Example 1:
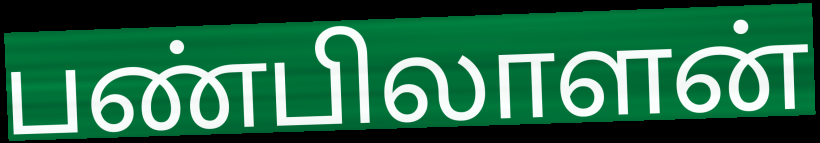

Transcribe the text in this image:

பண்பிலாளன்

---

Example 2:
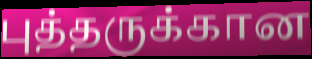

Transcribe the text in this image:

புத்தருக்கான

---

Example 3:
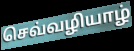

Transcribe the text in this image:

செவ்வழியாழ்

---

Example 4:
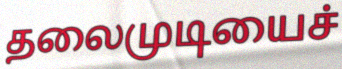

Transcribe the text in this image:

தலைமுடியைச்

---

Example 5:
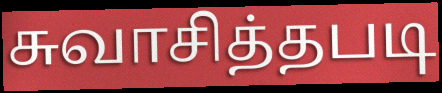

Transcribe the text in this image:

சுவாசித்தபடி